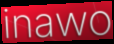
inawo